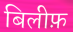
बिलीफ़